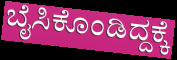
ಬೈಸಿಕೊಂಡಿದ್ದಕ್ಕೆ